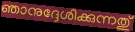
ഞാനുദ്ദേശിക്കുന്നതു്